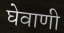
घेवाणी